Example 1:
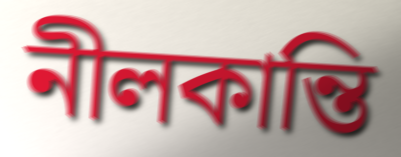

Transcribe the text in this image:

নীলকান্তি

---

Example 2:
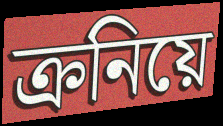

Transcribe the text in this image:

ক্রনিয়ে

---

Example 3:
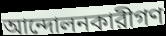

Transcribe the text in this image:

আন্দোলনকারীগণ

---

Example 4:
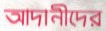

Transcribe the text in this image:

আদানীদের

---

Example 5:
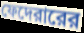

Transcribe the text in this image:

ফেদেরারের